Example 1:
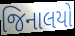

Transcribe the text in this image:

જિનાલયો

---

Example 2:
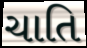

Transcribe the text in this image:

ચાતિ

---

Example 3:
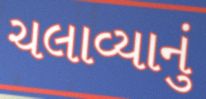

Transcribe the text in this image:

ચલાવ્યાનું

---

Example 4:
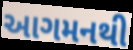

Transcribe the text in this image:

આગમનથી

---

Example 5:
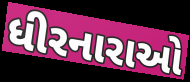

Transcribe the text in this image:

ધીરનારાઓ